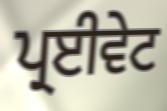
ਪ੍ਰਈਵੇਟ